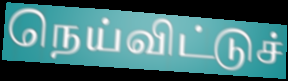
நெய்விட்டுச்